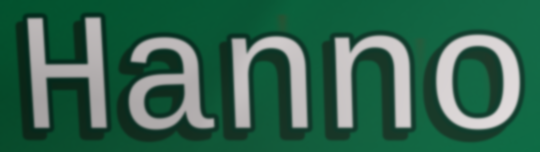
Hanno